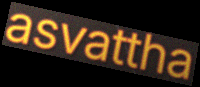
asvattha